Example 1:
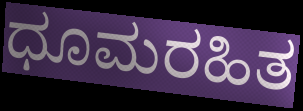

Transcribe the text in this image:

ಧೂಮರಹಿತ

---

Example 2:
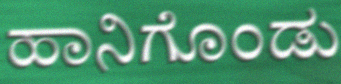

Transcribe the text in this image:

ಹಾನಿಗೊಂಡು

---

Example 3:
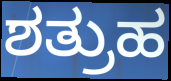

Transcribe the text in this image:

ಶತ್ರುಹ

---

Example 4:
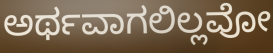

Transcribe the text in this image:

ಅರ್ಥವಾಗಲಿಲ್ಲವೋ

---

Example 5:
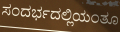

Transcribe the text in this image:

ಸಂದರ್ಭದಲ್ಲಿಯಂತೂ